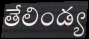
తేలిండ్య